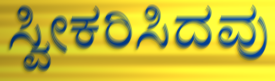
ಸ್ವೀಕರಿಸಿದವು